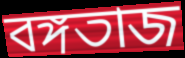
বঙ্গতাজ